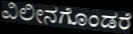
ವಿಲೀನಗೊಂಡರೆ